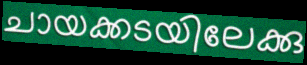
ചായക്കടയിലേക്കു